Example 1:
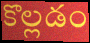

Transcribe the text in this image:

కొల్లడం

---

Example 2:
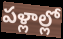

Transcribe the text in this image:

పళ్లాల్లో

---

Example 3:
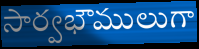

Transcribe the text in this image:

సార్వభౌములుగా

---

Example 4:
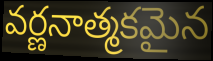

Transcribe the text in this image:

వర్ణనాత్మకమైన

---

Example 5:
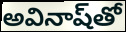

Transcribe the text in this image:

అవినాష్‌తో